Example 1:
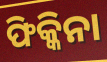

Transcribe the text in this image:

ଫିକ୍କିନା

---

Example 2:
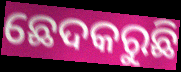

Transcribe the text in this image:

ଛେଦକରୁଛି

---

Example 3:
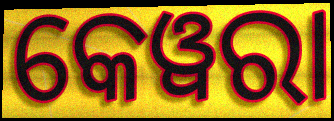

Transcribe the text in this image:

କେୱରା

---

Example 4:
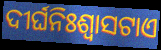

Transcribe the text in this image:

ଦୀର୍ଘନିଃଶ୍ୱାସଟାଏ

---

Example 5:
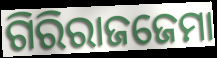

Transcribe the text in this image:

ଗିରିରାଜଜେମା